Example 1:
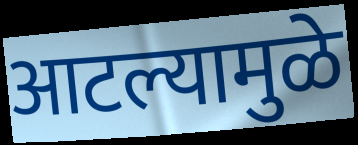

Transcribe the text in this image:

आटल्यामुळे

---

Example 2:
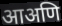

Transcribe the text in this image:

आअणि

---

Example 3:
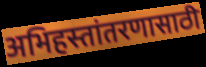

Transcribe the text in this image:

अभिहस्तांतरणासाठी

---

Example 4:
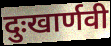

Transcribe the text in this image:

दुःखार्णवी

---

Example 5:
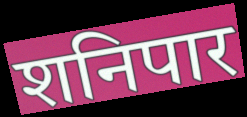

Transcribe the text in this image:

शनिपार